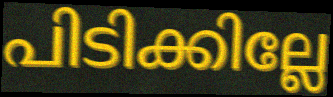
പിടിക്കില്ലേ